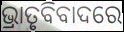
ଭ୍ରାତୃବିବାଦରେ